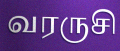
வரருசி